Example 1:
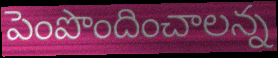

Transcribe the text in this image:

పెంపొందించాలన్న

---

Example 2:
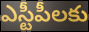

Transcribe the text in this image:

ఎస్టీపీలకు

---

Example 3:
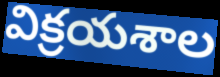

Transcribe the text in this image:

విక్రయశాల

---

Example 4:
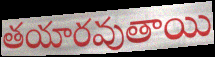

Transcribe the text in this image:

తయారవుతాయి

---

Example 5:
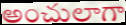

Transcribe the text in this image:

అంచులాగా